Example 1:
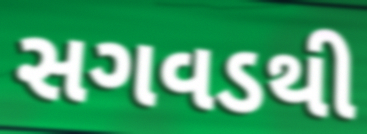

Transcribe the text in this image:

સગવડથી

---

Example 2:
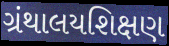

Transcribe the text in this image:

ગ્રંથાલયશિક્ષણ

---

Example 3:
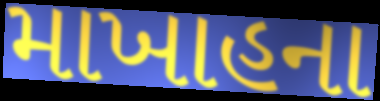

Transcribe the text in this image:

માખાહના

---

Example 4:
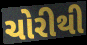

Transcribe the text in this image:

ચોરીથી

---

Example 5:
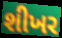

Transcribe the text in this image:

શીખર